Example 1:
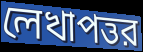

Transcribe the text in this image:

লেখাপত্তর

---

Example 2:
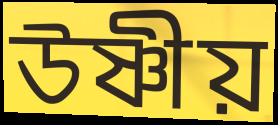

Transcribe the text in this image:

উষ্ণীয়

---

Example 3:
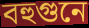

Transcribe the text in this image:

বহুগুনে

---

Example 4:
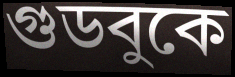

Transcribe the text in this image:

গুডবুকে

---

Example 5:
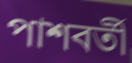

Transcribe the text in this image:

পাশবর্তী